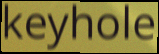
keyhole